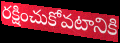
రక్షించుకోవటానికి